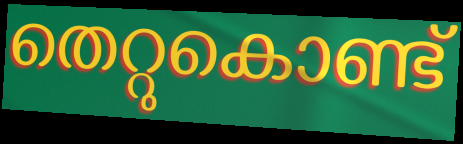
തെറ്റുകൊണ്ട്